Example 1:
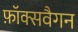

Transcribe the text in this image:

फ़ॉक्सवैगन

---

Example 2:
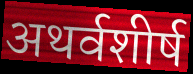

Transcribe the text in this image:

अथर्वशीर्ष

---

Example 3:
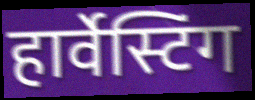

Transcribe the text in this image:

हार्वेस्टिंग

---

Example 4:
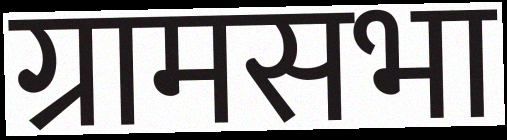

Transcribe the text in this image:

ग्रामसभा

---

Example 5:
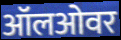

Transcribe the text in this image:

ऑलओवर